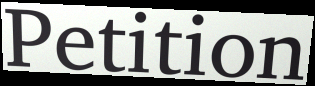
Petition